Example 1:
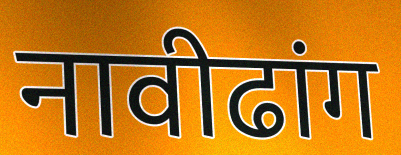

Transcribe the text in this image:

नावीढांग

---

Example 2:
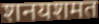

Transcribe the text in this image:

शनयशमत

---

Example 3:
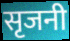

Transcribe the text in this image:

सृजनी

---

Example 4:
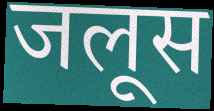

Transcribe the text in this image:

जलूस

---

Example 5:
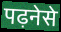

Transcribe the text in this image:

पढ़नेसे